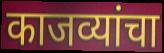
काजव्यांचा